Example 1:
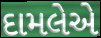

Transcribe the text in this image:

દામલેએ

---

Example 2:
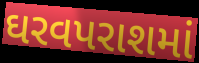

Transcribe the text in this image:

ઘરવપરાશમાં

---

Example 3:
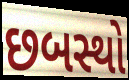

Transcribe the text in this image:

છબસ્થો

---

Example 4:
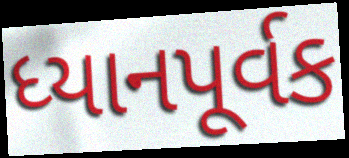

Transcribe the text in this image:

ધ્યાનપૂર્વક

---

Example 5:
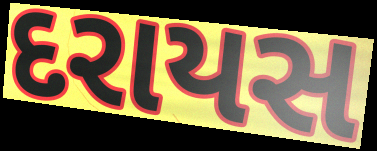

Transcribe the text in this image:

દરાયસ